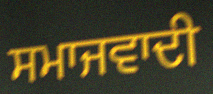
ਸਮਾਜਵਾਦੀ